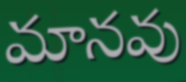
మానవు